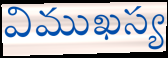
విముఖస్య